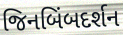
જિનબિંબદર્શન